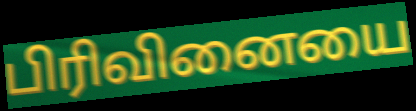
பிரிவினையை